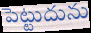
పెట్టుదును